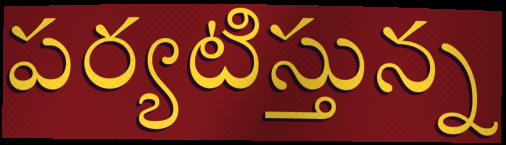
పర్యటిస్తున్న